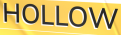
HOLLOW